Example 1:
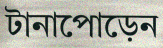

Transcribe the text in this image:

টানাপোড়েন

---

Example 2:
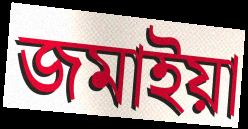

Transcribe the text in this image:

জমাইয়া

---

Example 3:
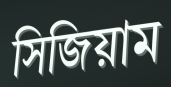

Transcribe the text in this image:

সিজিয়াম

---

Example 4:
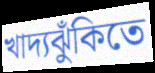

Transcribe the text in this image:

খাদ্যঝুঁকিতে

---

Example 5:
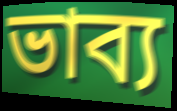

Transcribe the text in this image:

ভাব্য